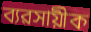
ব্যৱসায়ীক